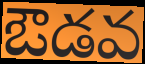
ఔడవ